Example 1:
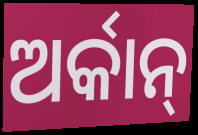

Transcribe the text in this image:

ଅର୍କାନ୍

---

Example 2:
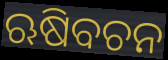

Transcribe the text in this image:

ଋଷିବଚନ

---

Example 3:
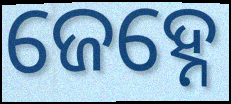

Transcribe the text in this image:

ଜେହ୍ନେ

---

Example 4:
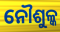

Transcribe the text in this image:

ନୌଶୁଳ୍କ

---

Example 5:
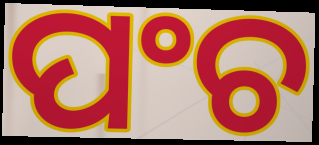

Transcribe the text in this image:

ପଂଚ